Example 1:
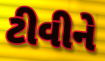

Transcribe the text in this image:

ટીવીને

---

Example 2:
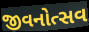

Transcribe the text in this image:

જીવનોત્સવ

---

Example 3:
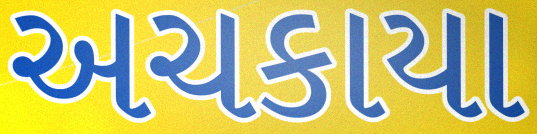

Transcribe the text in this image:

અચકાયા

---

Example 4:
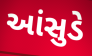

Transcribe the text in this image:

આંસુડે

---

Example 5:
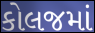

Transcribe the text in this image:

કોલજમાં